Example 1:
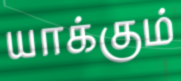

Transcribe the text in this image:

யாக்கும்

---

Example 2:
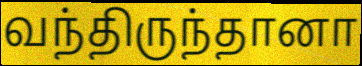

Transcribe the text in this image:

வந்திருந்தானா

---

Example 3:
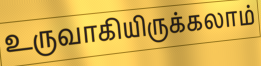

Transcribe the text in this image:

உருவாகியிருக்கலாம்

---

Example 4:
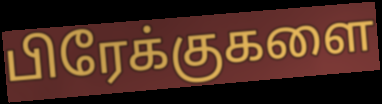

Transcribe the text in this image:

பிரேக்குகளை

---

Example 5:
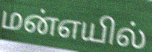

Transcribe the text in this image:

மன்எயில்